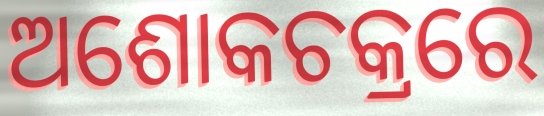
ଅଶୋକଚକ୍ରରେ